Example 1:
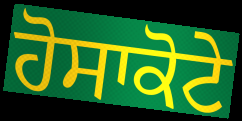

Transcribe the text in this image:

ਹੋਸਾਕੋਟੇ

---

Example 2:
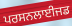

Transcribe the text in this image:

ਪਰਸਨਲਾਈਜਡ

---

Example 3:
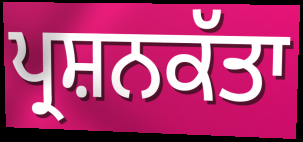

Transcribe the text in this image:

ਪ੍ਰਸ਼ਨਕੱਤਾ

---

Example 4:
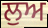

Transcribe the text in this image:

ਲੁਅ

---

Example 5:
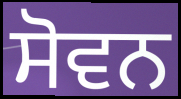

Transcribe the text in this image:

ਸੋਵਨ